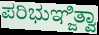
ಪರಿಭುಞ್ಜಿತ್ವಾ